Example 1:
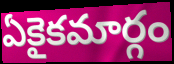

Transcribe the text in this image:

ఏకైకమార్గం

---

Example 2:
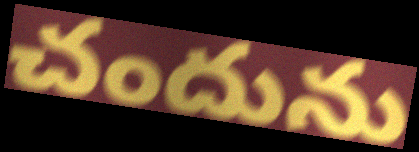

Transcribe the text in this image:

చందును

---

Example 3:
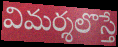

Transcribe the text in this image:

విమర్శలొస్తే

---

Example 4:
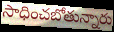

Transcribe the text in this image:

సాధించబోతున్నారు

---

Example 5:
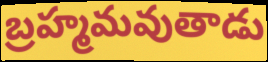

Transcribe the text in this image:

బ్రహ్మమవుతాడు